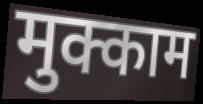
मुक्काम